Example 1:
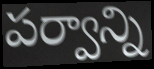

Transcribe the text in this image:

పర్వాన్ని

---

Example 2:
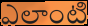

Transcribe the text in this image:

ఎలాంటి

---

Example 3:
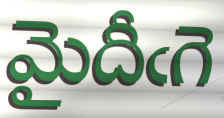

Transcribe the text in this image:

మైదీఁగె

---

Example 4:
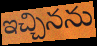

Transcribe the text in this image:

ఇచ్చినను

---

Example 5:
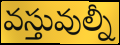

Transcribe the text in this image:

వస్తువుల్నీ